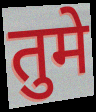
तुमे